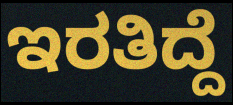
ಇರತಿದ್ದೆ